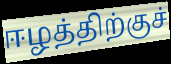
ஈழத்திற்குச்